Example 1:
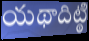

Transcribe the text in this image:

యథాదిట్ఠి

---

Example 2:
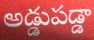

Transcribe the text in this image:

అడ్డుపడ్డా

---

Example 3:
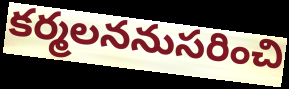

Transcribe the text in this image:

కర్మలననుసరించి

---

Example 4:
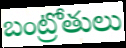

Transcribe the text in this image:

బంట్రోతులు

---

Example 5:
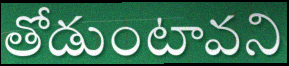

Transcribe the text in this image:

తోడుంటావని